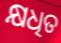
କ୍ଷଧିତ